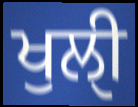
ਖੁਲੀੑ